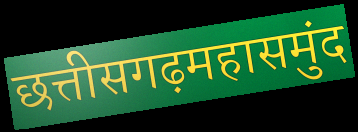
छत्तीसगढ़महासमुंद